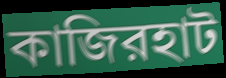
কাজিরহাট